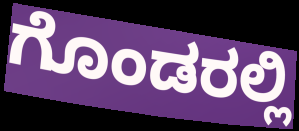
ಗೊಂಡರಲ್ಲಿ